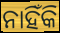
ନାହିଁକି